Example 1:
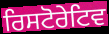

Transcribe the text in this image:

ਰਿਸਟੋਰੇਟਿਵ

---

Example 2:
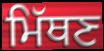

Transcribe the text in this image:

ਮਿੱਥਣ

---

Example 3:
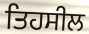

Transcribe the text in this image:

ਤਿਹਸੀਲ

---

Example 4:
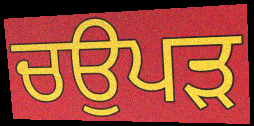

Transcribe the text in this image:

ਚਉਪੜ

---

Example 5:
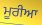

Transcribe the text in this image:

ਮੂਰੀਆ